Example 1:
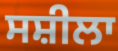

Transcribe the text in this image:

ਸਸ਼ੀਲਾ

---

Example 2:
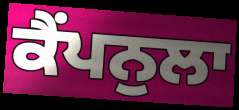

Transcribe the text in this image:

ਕੈਂਪਨੁਲਾ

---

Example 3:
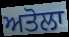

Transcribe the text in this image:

ਅਤੋਲਾ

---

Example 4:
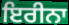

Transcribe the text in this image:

ਇਰੀਨਾ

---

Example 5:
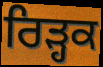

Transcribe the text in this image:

ਰਿੜ੍ਹਕ